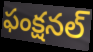
ఫంక్షనల్